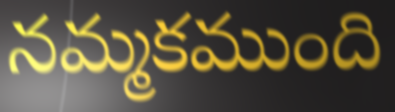
నమ్మకముంది